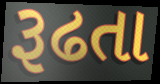
રૂઢતા